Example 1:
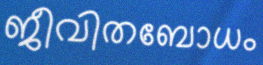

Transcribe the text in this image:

ജീവിതബോധം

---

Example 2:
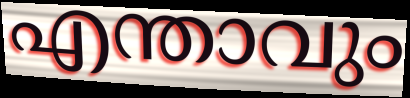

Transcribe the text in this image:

എന്താവും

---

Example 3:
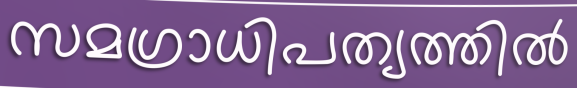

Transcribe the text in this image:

സമഗ്രാധിപത്യത്തിൽ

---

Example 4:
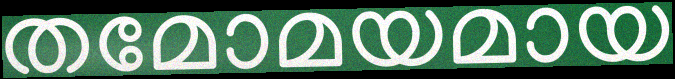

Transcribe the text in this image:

തമോമയമായ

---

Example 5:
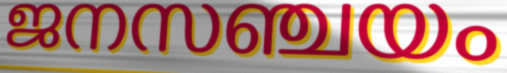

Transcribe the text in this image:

ജനസഞ്ചയം